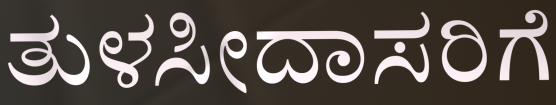
ತುಳಸೀದಾಸರಿಗೆ